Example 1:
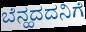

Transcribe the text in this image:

ಬೆನ್ಹದದನಿಗೆ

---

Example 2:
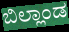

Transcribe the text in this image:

ಬಿಲ್ಲಾಂಡ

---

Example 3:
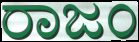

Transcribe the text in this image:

ರಾಜಂ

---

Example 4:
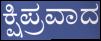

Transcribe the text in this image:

ಕ್ಷಿಪ್ರವಾದ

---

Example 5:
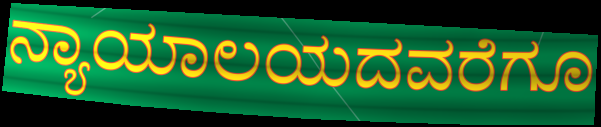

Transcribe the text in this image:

ನ್ಯಾಯಾಲಯದವರೆಗೂ